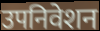
उपनिवेशन